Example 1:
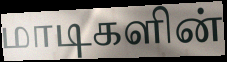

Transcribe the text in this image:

மாடிகளின்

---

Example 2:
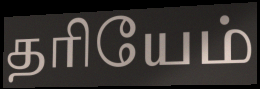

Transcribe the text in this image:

தரியேம்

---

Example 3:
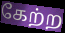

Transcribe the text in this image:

கேற்ற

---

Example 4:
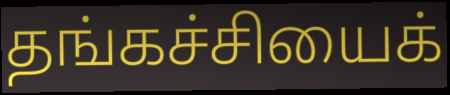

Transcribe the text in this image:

தங்கச்சியைக்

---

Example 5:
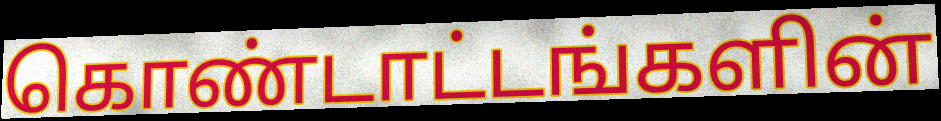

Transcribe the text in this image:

கொண்டாட்டங்களின்